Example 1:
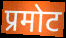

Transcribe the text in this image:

प्रमोट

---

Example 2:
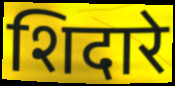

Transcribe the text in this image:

शिदारे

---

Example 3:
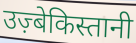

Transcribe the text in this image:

उज़्बेकिस्तानी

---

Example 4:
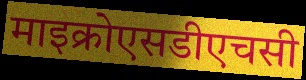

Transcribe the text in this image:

माइक्रोएसडीएचसी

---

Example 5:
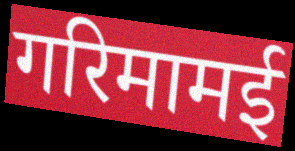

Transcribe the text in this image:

गरिमामई